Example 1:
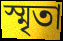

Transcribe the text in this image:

স্মৃতা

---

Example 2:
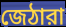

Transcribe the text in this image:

জেঠারা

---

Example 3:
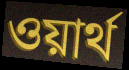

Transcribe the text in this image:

ওয়ার্থ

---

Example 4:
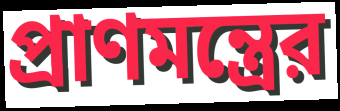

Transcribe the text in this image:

প্রাণমন্ত্রের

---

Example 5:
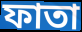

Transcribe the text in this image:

ফাতা